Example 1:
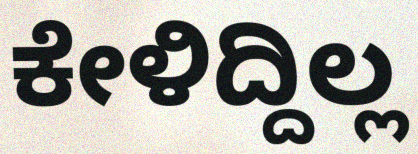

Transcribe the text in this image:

ಕೇಳಿದ್ದಿಲ್ಲ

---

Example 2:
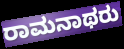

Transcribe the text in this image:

ರಾಮನಾಥರು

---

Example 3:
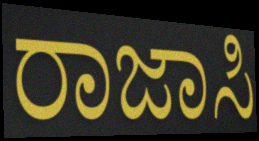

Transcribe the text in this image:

ರಾಜಾಸಿ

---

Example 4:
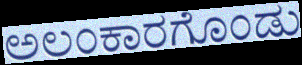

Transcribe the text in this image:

ಅಲಂಕಾರಗೊಂಡು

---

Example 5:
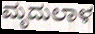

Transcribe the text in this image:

ಮೃದುಲಾಳ